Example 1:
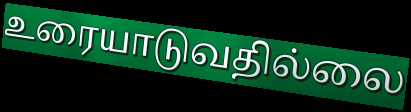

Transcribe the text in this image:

உரையாடுவதில்லை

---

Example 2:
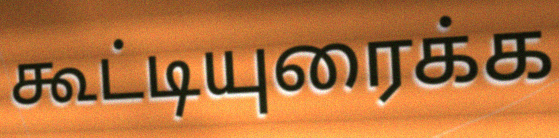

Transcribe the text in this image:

கூட்டியுரைக்க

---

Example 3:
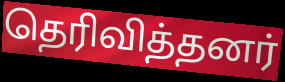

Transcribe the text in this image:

தெரிவித்தனர்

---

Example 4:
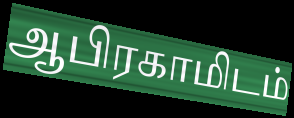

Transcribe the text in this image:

ஆபிரகாமிடம்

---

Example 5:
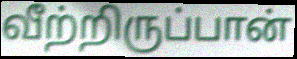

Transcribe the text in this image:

வீற்றிருப்பான்